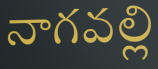
నాగవల్లి